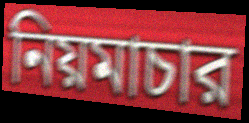
নিয়মাচার